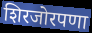
शिरजोरपणा